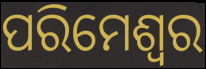
ପରିମେଶ୍ୱର